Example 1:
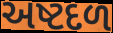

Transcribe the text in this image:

અષ્ટદળ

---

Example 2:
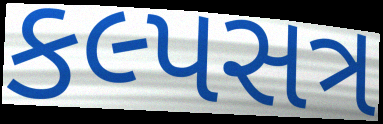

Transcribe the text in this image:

કલ્પસત્ર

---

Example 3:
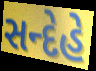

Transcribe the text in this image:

સન્દેહે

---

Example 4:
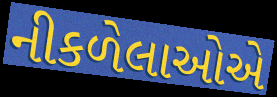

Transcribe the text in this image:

નીકળેલાઓએ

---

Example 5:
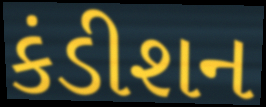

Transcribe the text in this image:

કંડીશન